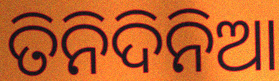
ତିନିଦିନିଆ